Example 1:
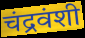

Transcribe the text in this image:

चंद्रवंशी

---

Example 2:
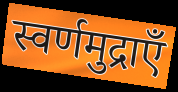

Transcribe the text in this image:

स्वर्णमुद्राएँ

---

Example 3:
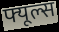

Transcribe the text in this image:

फ्यूल्स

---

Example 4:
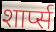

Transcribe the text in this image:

शार्प्स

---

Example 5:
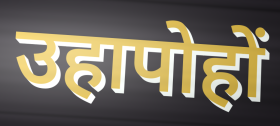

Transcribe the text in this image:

उहापोहों